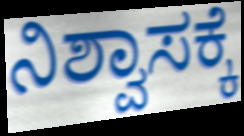
ನಿಶ್ವಾಸಕ್ಕೆ